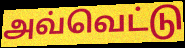
அவ்வெட்டு